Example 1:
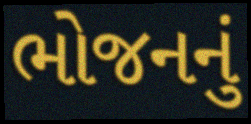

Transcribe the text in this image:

ભોજનનું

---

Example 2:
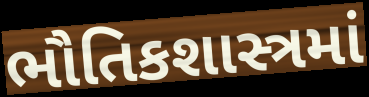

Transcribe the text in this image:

ભૌતિકશાસ્ત્રમાં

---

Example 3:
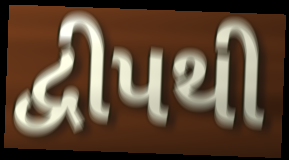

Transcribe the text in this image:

દ્વીપથી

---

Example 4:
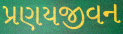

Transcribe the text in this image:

પ્રણયજીવન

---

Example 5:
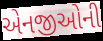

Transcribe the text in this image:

એનજીઓની